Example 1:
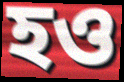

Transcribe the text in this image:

হও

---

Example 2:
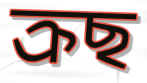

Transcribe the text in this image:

ক্ৰছ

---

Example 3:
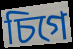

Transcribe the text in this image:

চিগে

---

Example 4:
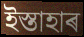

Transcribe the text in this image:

ইস্তাহাৰ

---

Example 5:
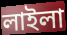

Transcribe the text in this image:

লাইলা